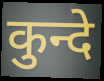
कुन्दे